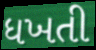
ધખતી